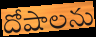
దోషాలను